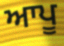
ਆਪੂ